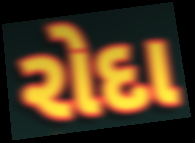
રોદા